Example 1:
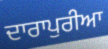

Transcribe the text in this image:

ਦਾਰਾਪੁਰੀਆ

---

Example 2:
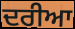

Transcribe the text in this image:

ਦਰੀਆ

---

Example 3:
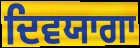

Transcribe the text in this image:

ਦਿਵਯਾਗਾ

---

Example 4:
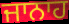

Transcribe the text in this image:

ਜਾਨਾਹ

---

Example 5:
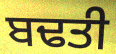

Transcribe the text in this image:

ਬਢਤੀ